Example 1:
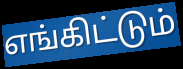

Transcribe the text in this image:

எங்கிட்டும்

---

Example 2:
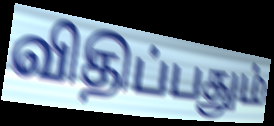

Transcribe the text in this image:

விதிப்பதும்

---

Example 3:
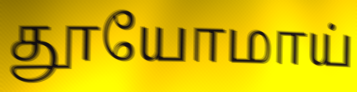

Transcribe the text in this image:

தூயோமாய்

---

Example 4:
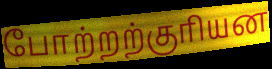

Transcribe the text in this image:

போற்றற்குரியன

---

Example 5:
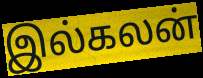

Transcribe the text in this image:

இல்கலன்